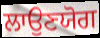
ਲਾਉਣਯੋਗ